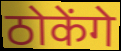
ठोकेंगे